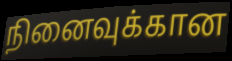
நினைவுக்கான